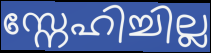
സ്നേഹിച്ചില്ല